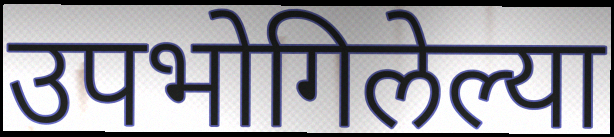
उपभोगिलेल्या